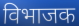
विभाजक